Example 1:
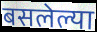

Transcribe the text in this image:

बसलेल्या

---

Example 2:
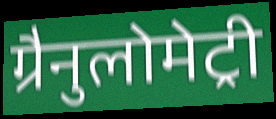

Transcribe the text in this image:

ग्रैनुलोमेट्री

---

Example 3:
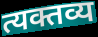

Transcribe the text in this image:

त्यक्तव्य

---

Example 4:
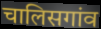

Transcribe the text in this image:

चालिसगांव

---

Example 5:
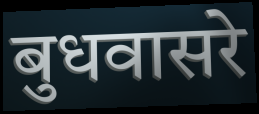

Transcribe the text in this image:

बुधवासरे